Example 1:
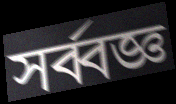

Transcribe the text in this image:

সৰ্ব্বজ্ঞ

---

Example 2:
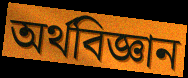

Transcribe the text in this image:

অৰ্থবিজ্ঞান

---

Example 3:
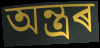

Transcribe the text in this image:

অন্ত্ৰৰ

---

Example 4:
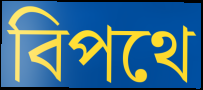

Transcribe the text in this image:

বিপথে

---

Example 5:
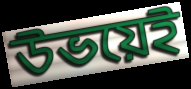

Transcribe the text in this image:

উভয়েই